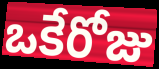
ఒకేరోజు